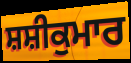
ਸ਼ਸ਼ੀਕੁਮਾਰ